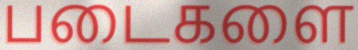
படைகளை